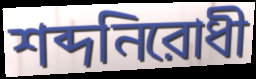
শব্দনিরোধী